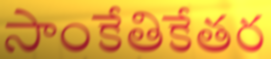
సాంకేతికేతర